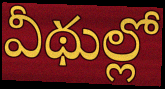
వీథుల్లో